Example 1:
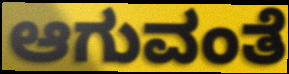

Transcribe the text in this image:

ಆಗುವಂತೆ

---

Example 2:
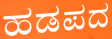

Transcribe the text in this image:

ಹಡಪದ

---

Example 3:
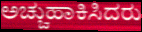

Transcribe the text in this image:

ಅಚ್ಚುಹಾಕಿಸಿದರು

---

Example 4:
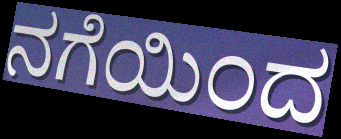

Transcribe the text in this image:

ನಗೆಯಿಂದ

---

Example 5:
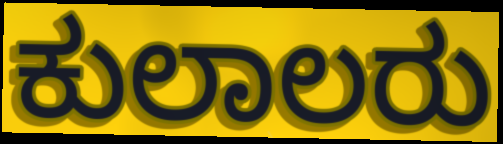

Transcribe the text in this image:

ಕುಲಾಲರು